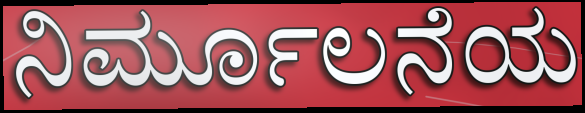
ನಿರ್ಮೂಲನೆಯ